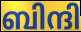
ബിന്ദി